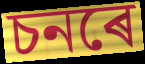
চনৰে